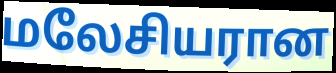
மலேசியரான